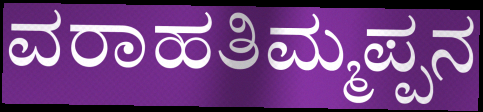
ವರಾಹತಿಮ್ಮಪ್ಪನ